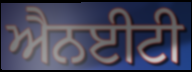
ਐਨਈਟੀ